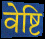
वेष्टि